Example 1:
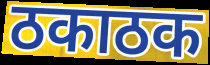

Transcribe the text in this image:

ठकाठक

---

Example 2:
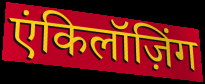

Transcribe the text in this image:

एंकिलॉज़िंग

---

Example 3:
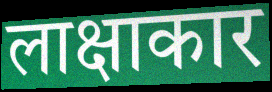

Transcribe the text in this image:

लाक्षाकार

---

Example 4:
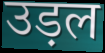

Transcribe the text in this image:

उड़ल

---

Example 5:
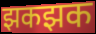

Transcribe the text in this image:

झकझक